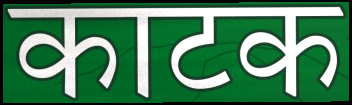
काटक